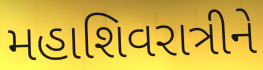
મહાશિવરાત્રીને